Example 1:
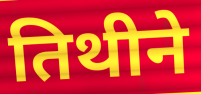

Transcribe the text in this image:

तिथीने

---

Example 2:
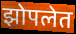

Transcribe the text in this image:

झोपलेत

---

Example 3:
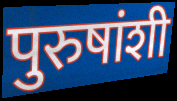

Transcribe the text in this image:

पुरुषांशी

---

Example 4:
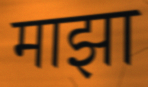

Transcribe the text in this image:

माझा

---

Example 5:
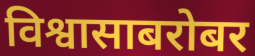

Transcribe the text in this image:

विश्वासाबरोबर